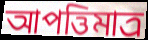
আপত্তিমাত্র